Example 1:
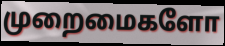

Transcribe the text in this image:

முறைமைகளோ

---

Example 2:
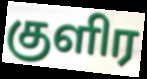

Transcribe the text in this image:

குளிர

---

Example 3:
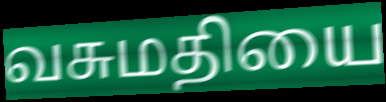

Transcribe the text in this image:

வசுமதியை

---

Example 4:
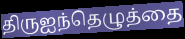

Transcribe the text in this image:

திருஐந்தெழுத்தை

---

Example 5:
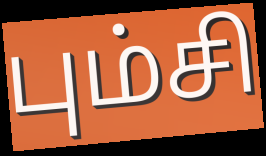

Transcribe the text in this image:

பும்சி